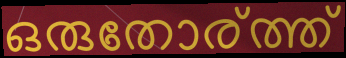
ഒരുതോര്ത്ത്